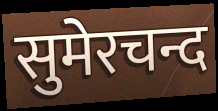
सुमेरचन्द